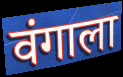
वंगाला